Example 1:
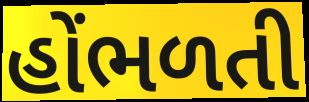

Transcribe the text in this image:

હોંભળતી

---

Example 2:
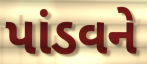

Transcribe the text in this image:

પાંડવને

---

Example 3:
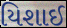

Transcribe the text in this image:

યિશાઈ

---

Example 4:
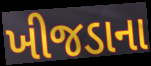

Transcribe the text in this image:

ખીજડાના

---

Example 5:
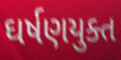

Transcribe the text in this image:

ઘર્ષણયુક્ત